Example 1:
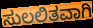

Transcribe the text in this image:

ಸುಲಲಿತವಾಗಿ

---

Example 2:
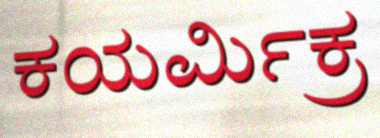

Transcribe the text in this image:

ಕಯರ್ಮಿಕ್ರ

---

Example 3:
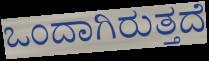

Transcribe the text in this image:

ಒಂದಾಗಿರುತ್ತದೆ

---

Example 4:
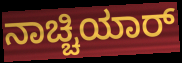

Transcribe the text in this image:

ನಾಚ್ಚಿಯಾರ್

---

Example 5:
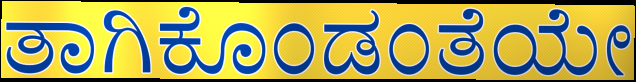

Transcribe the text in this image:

ತಾಗಿಕೊಂಡಂತೆಯೇ